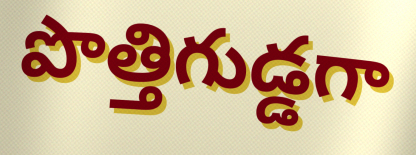
పొత్తిగుడ్డగా